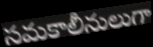
సమకాలీనులుగా